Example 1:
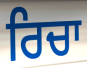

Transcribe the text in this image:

ਰਿਚਾ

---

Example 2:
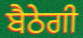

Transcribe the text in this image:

ਬੈਠੇਗੀ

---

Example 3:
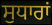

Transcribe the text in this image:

ਸੁਧਾਰਾਂ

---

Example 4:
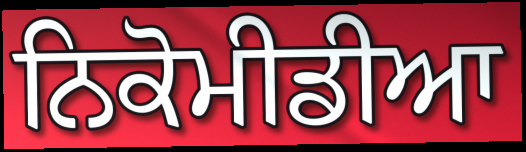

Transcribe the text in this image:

ਨਿਕੋਮੀਡੀਆ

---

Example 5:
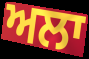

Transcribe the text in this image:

ਅਲਾ